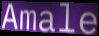
Amale